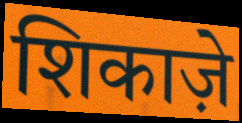
शिकाज़े